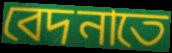
বেদনাতে